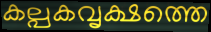
കല്പകവൃക്ഷത്തെ